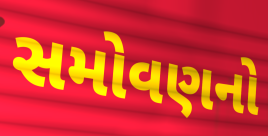
સમોવણનો